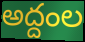
అద్దంల